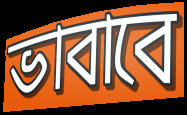
ভাবাবে